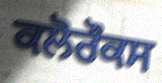
ਕਲੋਰੌਕਸ